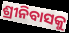
ଶ୍ରୀନିବାସକୁ